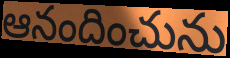
ఆనందించును